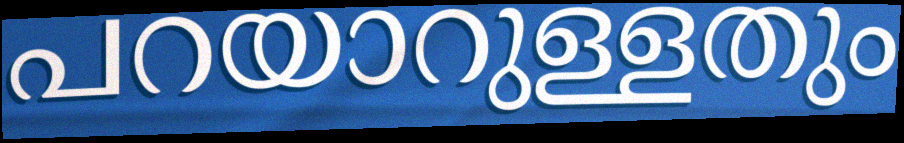
പറയാറുള്ളതും